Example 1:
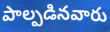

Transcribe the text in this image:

పాల్పడినవారు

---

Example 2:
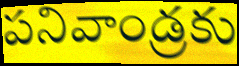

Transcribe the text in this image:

పనివాండ్రకు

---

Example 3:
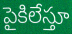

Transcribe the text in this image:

పైకిలేస్తూ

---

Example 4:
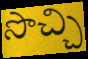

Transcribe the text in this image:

సొచ్చి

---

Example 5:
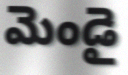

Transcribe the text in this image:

మెండై